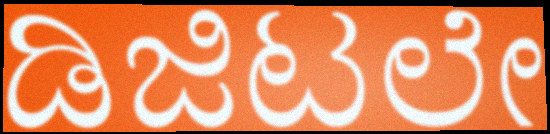
ಡಿಜಿಟಲೇ